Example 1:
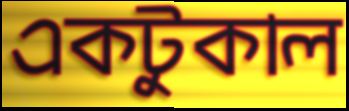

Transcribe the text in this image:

একটুকাল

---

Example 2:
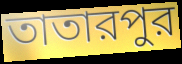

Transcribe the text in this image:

তাতারপুর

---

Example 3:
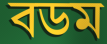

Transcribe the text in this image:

বডম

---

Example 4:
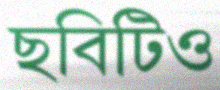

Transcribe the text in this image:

ছবিটিও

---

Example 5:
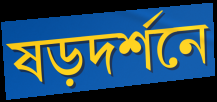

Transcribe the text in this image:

ষড়দর্শনে